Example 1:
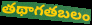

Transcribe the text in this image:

తథాగతబలం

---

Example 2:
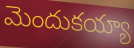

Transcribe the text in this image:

మెందుకయ్యా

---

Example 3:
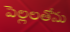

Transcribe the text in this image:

పెల్లలతోను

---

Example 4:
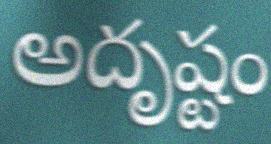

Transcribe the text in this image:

అదృష్టం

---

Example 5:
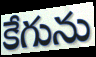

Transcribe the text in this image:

కేగును